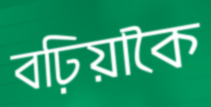
বঢ়িয়াকৈ